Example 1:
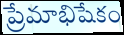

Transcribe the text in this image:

ప్రేమాభిషేకం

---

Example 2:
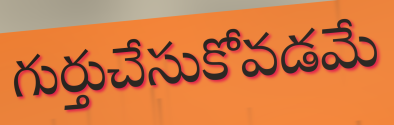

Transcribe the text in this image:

గుర్తుచేసుకోవడమే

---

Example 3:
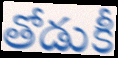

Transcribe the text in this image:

తోడుకీ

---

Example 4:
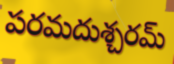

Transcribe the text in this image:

పరమదుశ్చరమ్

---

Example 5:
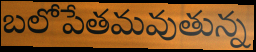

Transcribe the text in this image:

బలోపేతమవుతున్న